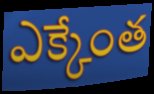
ఎక్కేంత